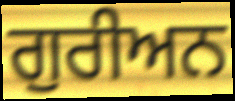
ਗੁਰੀਅਨ